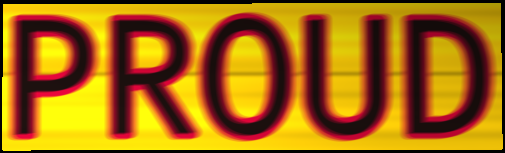
PROUD